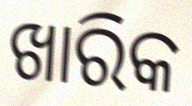
ଖାରିକ